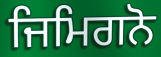
ਜਿਮਿਗਨੋ